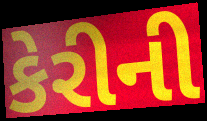
કેરીની